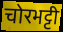
चोरभट्टी